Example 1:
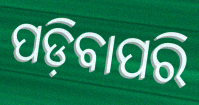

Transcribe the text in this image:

ପଡ଼ିବାପରି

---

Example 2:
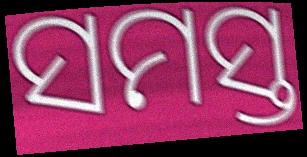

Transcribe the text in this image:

ସମସ୍ତ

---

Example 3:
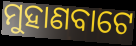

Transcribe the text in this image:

ମୁହାଣବାଟେ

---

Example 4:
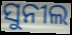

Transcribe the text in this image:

ସୁନୀଲ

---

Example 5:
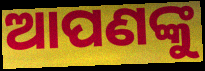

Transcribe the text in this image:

ଆପଣଙ୍କୁ